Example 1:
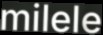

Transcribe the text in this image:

milele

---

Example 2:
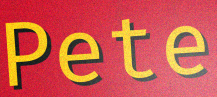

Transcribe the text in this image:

Pete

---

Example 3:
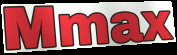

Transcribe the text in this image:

Mmax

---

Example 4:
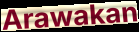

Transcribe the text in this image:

Arawakan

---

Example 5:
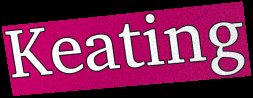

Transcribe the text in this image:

Keating